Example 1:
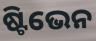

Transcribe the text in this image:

ଷ୍ଟିଭେନ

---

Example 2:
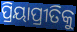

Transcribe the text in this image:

ପ୍ରିୟାପ୍ରୀତିକୁ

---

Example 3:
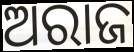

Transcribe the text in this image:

ଅରାଜ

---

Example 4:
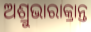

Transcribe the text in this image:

ଅଶ୍ରୁଭାରାକ୍ରାନ୍ତ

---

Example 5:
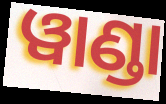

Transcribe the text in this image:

ୱାଣ୍ଡା